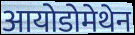
आयोडोमेथेन